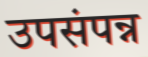
उपसंपन्न